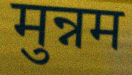
मुन्नम